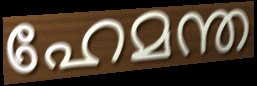
ഹേമന്ത